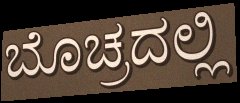
ಬೊಚ್ರದಲ್ಲಿ